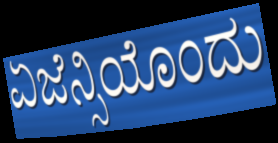
ಏಜೆನ್ಸಿಯೊಂದು